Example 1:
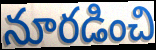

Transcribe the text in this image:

నూరడించి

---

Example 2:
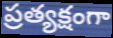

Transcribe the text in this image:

ప్రత్యక్షంగా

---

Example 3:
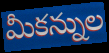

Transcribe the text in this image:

మీకన్నుల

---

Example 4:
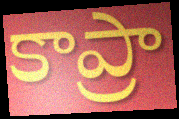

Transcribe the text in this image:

కాప్రా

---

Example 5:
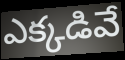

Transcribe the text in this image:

ఎక్కడివే